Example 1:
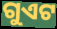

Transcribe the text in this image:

ଗୁଏଟ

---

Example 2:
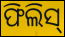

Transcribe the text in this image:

ଫିଲିସ୍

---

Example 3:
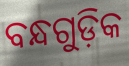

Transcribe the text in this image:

ବନ୍ଧଗୁଡ଼ିକ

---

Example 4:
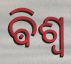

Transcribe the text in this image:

ଵିଶ୍ୱ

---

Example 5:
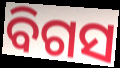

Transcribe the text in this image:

ବିଗସ